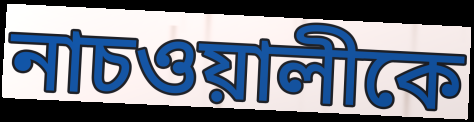
নাচওয়ালীকে